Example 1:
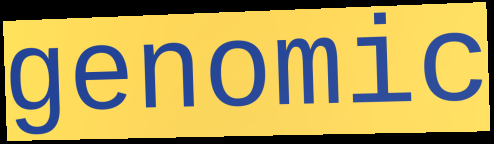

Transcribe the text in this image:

genomic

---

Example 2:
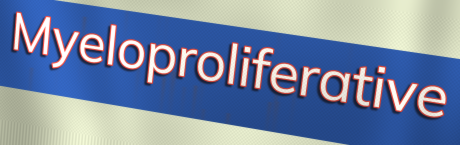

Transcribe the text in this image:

Myeloproliferative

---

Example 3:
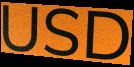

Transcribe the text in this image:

USD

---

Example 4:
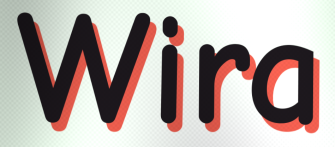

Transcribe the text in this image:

Wira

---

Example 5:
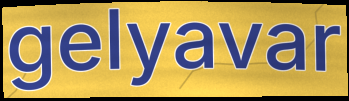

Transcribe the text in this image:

gelyavar